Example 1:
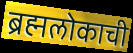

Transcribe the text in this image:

ब्रह्मलोकाची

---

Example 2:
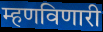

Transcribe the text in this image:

म्हणविणारी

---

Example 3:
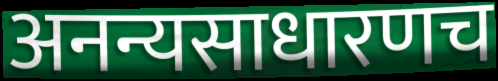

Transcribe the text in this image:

अनन्यसाधारणच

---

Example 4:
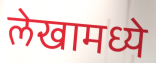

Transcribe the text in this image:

लेखामध्ये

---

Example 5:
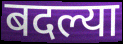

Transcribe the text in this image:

बदल्या